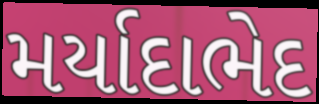
મર્યાદાભેદ